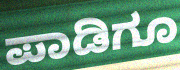
ಪಾಡಿಗೂ